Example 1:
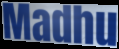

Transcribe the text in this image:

Madhu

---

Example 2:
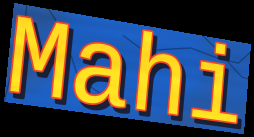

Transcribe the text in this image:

Mahi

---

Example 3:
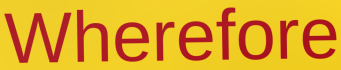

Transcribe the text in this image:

Wherefore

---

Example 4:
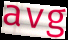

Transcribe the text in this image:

avg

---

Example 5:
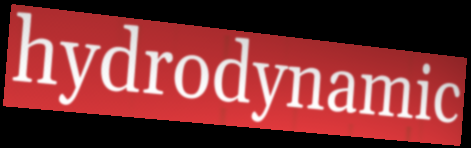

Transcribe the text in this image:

hydrodynamic